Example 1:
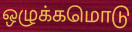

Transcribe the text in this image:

ஒழுக்கமொடு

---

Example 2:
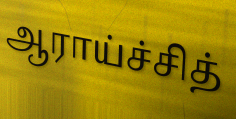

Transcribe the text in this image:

ஆராய்ச்சித்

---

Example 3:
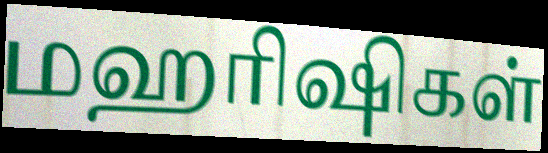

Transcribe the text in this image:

மஹரிஷிகள்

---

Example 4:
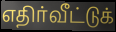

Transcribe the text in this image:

எதிர்வீட்டுக்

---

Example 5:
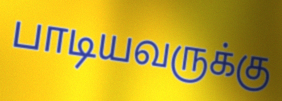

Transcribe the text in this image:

பாடியவருக்கு